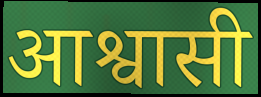
आश्वासी